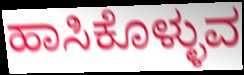
ಹಾಸಿಕೊಳ್ಳುವ